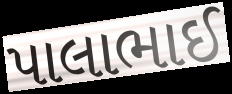
પાલાભાઈ